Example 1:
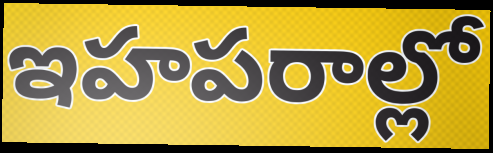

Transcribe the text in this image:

ఇహపరాల్లో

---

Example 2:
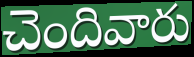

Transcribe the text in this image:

చెందివారు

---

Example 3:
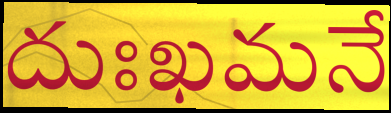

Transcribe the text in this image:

దుఃఖమనే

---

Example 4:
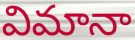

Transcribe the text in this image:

విమానా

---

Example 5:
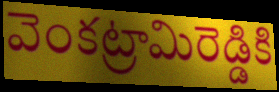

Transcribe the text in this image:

వెంకట్రామిరెడ్డికి